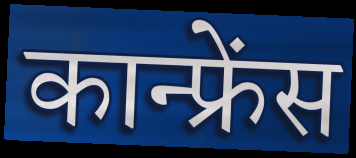
कान्फ्रेंस